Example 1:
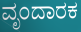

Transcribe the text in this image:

ವೃಂದಾರಕ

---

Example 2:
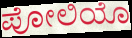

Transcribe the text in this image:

ಪೋಲಿಯೊ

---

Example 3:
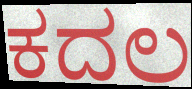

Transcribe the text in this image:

ಕದಲ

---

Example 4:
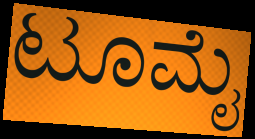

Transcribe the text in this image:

ಟೂಮೈ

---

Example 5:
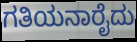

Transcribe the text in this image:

ಗತಿಯನಾರೈದು